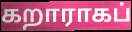
கறாராகப்